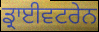
ਡ੍ਰਾਈਵਟਰੇਨ